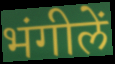
भंगीलें